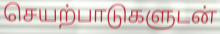
செயற்பாடுகளுடன்